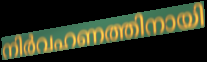
നിർവഹണത്തിനായി